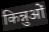
किन्नुओं